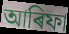
আৰিফা